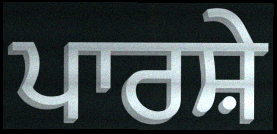
ਪਾਰਸ਼ੇ